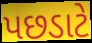
પછડાટે